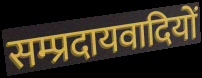
सम्प्रदायवादियों